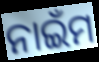
ନାଇଁମ